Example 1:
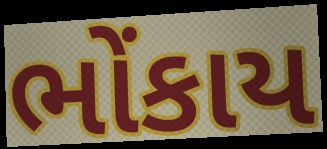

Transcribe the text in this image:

ભોંકાય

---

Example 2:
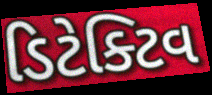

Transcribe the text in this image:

ડિટેક્ટિવ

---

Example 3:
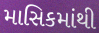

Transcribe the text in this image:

માસિકમાંથી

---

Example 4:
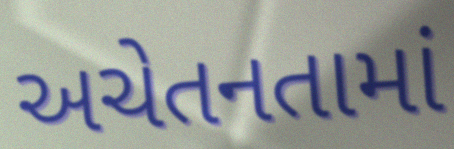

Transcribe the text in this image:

અચેતનતામાં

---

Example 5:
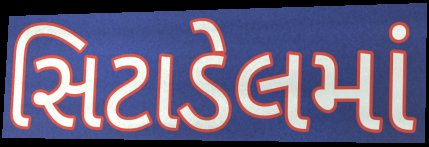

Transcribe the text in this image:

સિટાડેલમાં